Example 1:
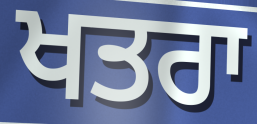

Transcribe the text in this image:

ਖਤਰਾ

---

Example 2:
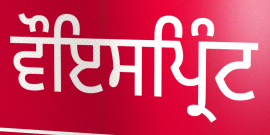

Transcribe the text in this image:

ਵੌਇਸਪ੍ਰਿੰਟ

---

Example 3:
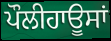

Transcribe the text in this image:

ਪੌਲੀਹਾਊਸਾਂ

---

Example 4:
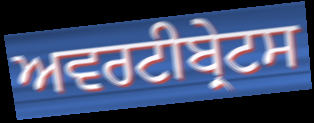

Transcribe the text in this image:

ਅਵਰਟੀਬ੍ਰੇਟਸ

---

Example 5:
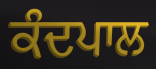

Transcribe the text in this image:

ਕੰਦਪਾਲ